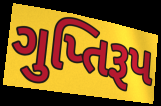
ગુપ્તિરૂપ